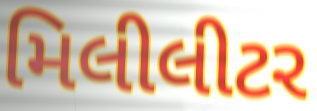
મિલીલીટર